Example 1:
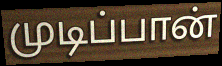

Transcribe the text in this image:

முடிப்பான்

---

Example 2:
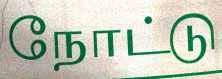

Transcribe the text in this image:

நோட்டு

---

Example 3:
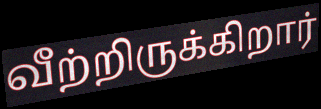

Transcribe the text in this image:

வீற்றிருக்கிறார்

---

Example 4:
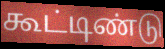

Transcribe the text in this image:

கூட்டிண்டு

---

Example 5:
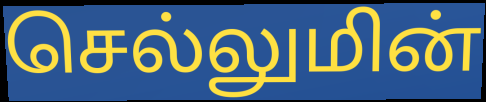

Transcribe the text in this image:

செல்லுமின்